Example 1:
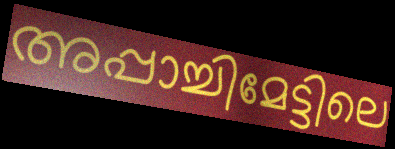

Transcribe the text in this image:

അപ്പാച്ചിമേട്ടിലെ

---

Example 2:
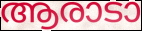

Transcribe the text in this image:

ആരാടാ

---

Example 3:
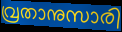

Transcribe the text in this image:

വ്രതാനുസാരി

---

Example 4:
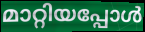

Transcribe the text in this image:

മാറ്റിയപ്പോൾ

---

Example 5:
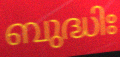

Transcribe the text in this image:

ബുദ്ധിഃ